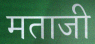
मताजी